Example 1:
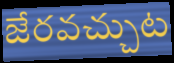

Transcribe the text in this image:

జేరవచ్చుట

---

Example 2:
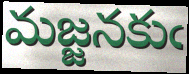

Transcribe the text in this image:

మజ్జనకుఁ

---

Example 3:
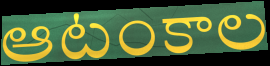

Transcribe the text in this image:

ఆటంకాల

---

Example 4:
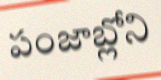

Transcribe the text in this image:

పంజాబ్లోని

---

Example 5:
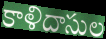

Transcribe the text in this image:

కాళిదాసుల